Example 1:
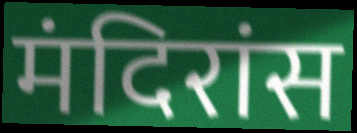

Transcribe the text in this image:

मंदिरांस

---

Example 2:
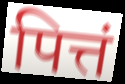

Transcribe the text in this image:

पित्तं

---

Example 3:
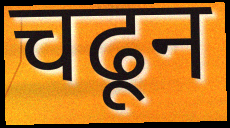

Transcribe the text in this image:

चढून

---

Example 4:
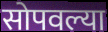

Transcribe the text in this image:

सोपवल्या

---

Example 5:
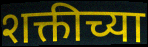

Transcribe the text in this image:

शक्तीच्या